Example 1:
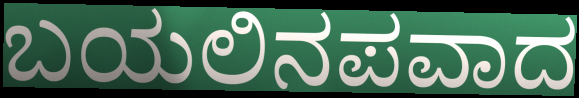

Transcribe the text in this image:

ಬಯಲಿನಪವಾದ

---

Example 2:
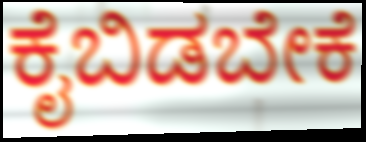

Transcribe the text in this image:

ಕೈಬಿಡಬೇಕೆ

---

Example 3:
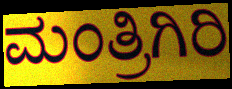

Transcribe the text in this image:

ಮಂತ್ರಿಗಿರಿ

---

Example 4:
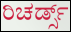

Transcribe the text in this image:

ರಿಚರ್ಡ್ಸ್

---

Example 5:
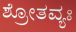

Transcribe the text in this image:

ಶ್ರೋತವ್ಯಃ